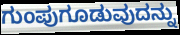
ಗುಂಪುಗೂಡುವುದನ್ನು